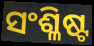
ସଂଶ୍ଳିଷ୍ଟ